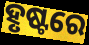
ହୃଷ୍ଟରେ